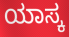
ಯಾಸ್ಕ